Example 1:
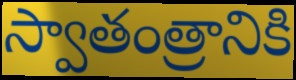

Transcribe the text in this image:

స్వాతంత్రానికి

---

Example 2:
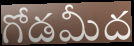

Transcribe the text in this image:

గోడమీద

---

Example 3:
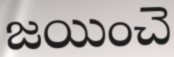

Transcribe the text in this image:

జయించె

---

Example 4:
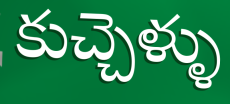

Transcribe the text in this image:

కుచ్చెళ్ళు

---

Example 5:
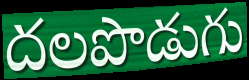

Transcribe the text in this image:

దలపొడుగు